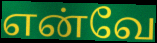
என்வே